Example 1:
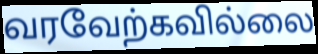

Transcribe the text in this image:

வரவேற்கவில்லை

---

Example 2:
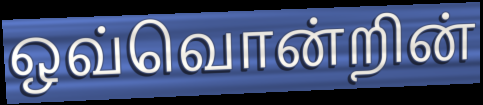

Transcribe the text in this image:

ஒவ்வொன்றின்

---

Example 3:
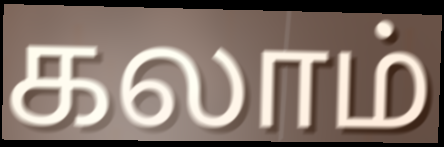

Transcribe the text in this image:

கலாம்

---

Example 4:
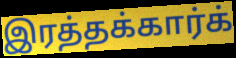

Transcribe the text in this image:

இரத்தக்கார்க்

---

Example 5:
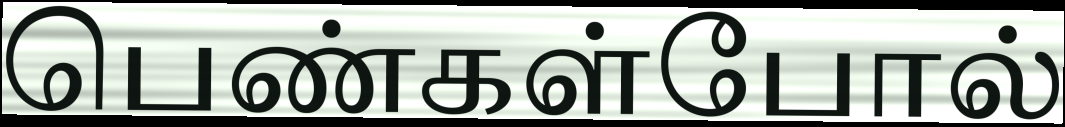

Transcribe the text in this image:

பெண்கள்போல்